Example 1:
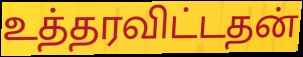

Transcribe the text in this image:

உத்தரவிட்டதன்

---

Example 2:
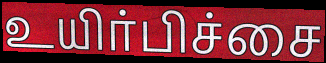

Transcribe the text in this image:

உயிர்பிச்சை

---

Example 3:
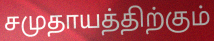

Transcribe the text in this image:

சமுதாயத்திற்கும்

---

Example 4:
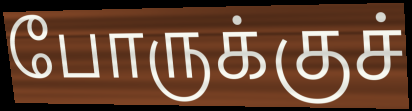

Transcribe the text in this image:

போருக்குச்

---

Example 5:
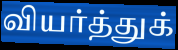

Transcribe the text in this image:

வியர்த்துக்